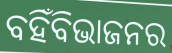
ବହିଁବିଭାଜନର